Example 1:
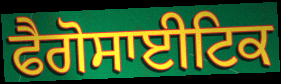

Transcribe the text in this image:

ਫੈਗੋਸਾਈਟਿਕ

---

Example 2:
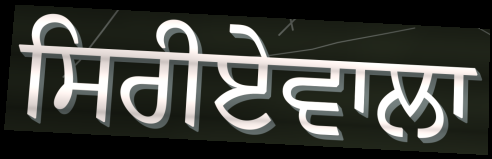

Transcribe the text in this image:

ਸਿਰੀਏਵਾਲਾ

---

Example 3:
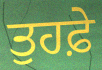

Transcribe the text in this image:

ਤੁਹਫ਼ੇ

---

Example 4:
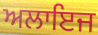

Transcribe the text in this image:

ਅਲਾਇਜ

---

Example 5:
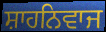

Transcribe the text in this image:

ਸ਼ਾਹਨਿਵਾਜ